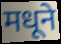
मधूने